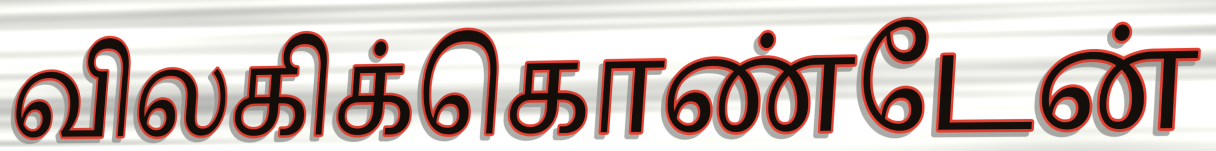
விலகிக்கொண்டேன்